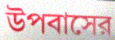
উপবাসের